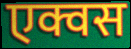
एक्वस